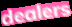
dealers